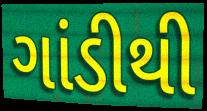
ગાંડીથી